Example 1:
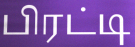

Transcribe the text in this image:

பிரட்டி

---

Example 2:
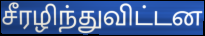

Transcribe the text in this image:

சீரழிந்துவிட்டன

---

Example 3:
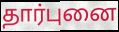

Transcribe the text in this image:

தார்புனை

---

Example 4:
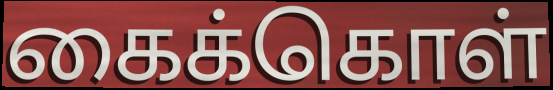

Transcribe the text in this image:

கைக்கொள்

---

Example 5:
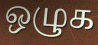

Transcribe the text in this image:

ஒழுக